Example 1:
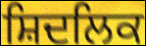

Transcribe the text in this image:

ਸ਼ਿਦਲਿਕ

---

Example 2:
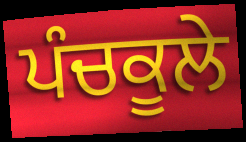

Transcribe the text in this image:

ਪੰਚਕੂਲੇ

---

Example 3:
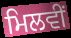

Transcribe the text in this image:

ਮਿਲਵੀਂ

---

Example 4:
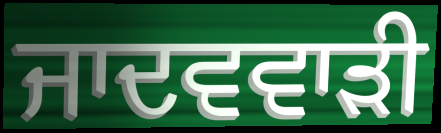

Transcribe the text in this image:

ਜਾਦਵਵਾੜੀ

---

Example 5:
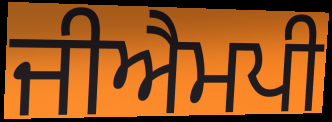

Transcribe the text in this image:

ਜੀਐਮਪੀ